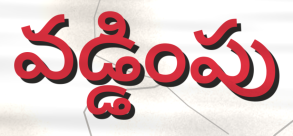
వడ్డింపు